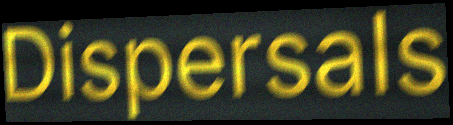
Dispersals